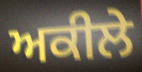
ਅਕੀਲੇ